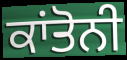
ਕਾਂਤੋਨੀ